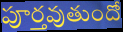
పూర్తవుతుందో